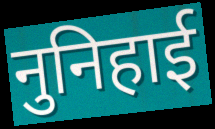
नुनिहाई